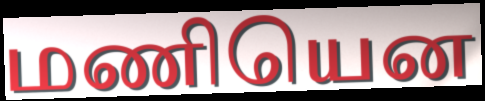
மணியென